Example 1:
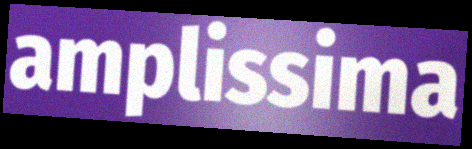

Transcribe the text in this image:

amplissima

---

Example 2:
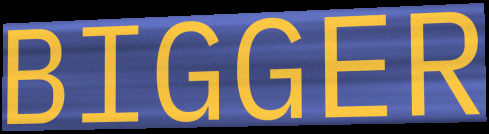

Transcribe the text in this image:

BIGGER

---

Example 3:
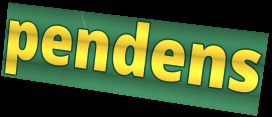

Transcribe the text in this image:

pendens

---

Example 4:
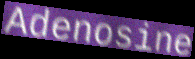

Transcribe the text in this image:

Adenosine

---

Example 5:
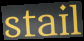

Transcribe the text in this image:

stail